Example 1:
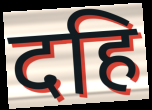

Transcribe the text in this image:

दहि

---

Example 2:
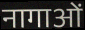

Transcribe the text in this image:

नागाओं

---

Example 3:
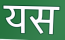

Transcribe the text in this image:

यस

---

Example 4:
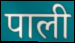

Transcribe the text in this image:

पाली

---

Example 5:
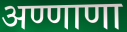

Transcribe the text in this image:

अण्णाणा